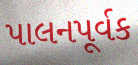
પાલનપૂર્વક